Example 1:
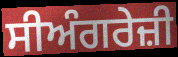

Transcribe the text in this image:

ਸੀਅੰਗਰੇਜ਼ੀ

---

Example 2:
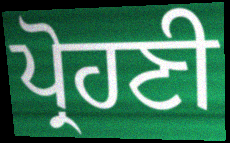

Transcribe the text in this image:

ਪ੍ਰੋਹਣੀ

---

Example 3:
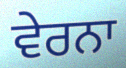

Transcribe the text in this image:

ਵੇਰਨਾ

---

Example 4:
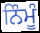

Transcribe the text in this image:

ਨਿੰਮੂੰ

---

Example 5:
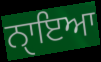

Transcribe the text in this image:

ਨੑਾਇਆ